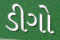
ડીગો